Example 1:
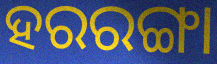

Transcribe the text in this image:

ହରରଙ୍ଗା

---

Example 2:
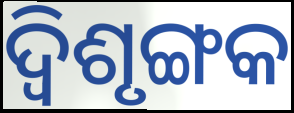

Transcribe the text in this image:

ଦ୍ଵିଶୃଙ୍ଗକ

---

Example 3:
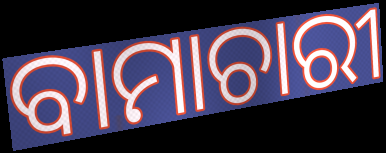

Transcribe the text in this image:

ବାମାଚାରୀ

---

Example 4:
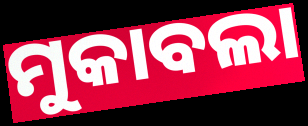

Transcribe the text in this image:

ମୁକାବଲା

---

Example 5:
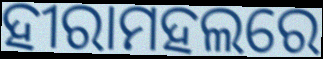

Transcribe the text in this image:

ହୀରାମହଲରେ